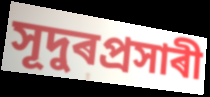
সূদুৰপ্ৰসাৰী